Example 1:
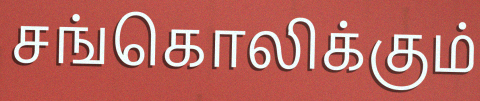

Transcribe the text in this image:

சங்கொலிக்கும்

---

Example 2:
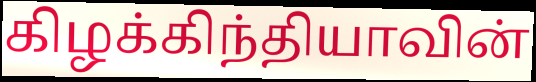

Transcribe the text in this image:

கிழக்கிந்தியாவின்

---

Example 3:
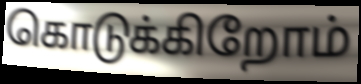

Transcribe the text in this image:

கொடுக்கிறோம்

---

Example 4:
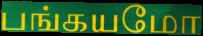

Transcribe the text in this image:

பங்கயமோ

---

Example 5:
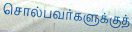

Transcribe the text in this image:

சொல்பவர்களுக்குத்